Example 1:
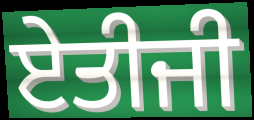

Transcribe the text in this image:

ਏਤੀਜੀ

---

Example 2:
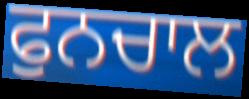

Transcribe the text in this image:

ਫੁਨਚਾਲ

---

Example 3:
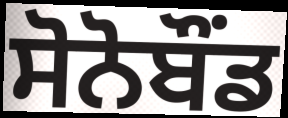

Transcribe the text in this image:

ਸੋਨੋਬੌਂਡ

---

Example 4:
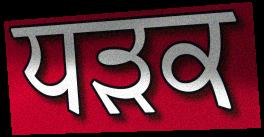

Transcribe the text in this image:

ਧੜਕ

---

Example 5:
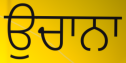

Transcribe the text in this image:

ਉਚਾਨਾ